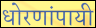
धोरणांपायी